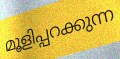
മൂളിപ്പറക്കുന്ന